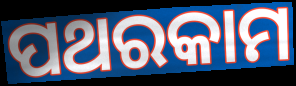
ପଥରକାମ